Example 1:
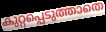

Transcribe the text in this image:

കുറ്റപ്പെടുത്താതെ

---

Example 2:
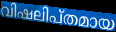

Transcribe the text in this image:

വിഷലിപ്തമായ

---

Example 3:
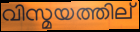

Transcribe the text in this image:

വിസ്മയത്തില്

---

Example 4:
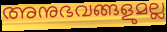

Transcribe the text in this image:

അനുഭവങ്ങളുമല്ല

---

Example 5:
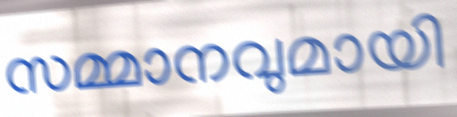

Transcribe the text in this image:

സമ്മാനവുമായി